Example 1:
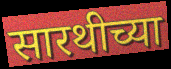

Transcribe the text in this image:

सारथीच्या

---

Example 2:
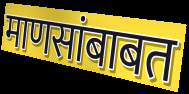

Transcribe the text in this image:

माणसांबाबत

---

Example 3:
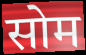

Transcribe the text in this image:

सोम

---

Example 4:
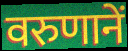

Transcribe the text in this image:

वरुणानें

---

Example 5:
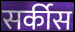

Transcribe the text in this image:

सर्कीस